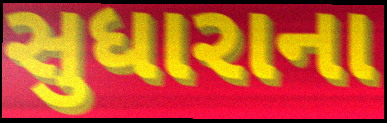
સુધારાના